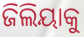
ଜିଲିୟାକୁ